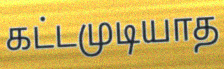
கட்டமுடியாத